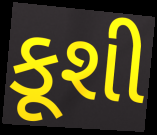
કૂશી